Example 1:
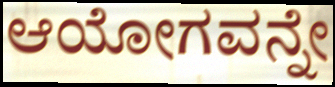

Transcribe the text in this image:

ಆಯೋಗವನ್ನೇ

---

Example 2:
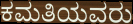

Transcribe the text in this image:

ಕಮತಿಯವರು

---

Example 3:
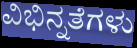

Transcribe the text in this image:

ವಿಭಿನ್ನತೆಗಳು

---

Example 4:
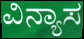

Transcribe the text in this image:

ವಿನ್ಯಾಸ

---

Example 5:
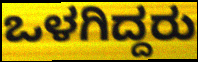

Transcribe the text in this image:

ಒಳಗಿದ್ದರು